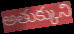
అతుక్కుని